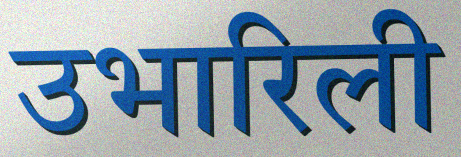
उभारिली